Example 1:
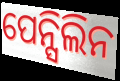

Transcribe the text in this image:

ପେନ୍ସିଲିନ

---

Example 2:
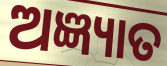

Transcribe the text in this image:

ଅଜ୍ଞ୍ୟାତ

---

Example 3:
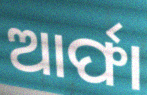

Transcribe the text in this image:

ଆର୍ଫା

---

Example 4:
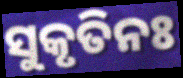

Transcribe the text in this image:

ସୁକୃତିନଃ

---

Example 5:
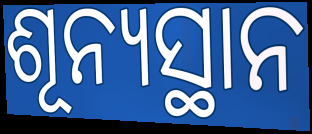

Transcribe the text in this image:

ଶୂନ୍ୟସ୍ଥାନ